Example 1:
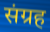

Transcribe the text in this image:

संग्रह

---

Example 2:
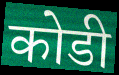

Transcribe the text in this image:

कोडी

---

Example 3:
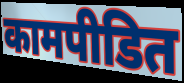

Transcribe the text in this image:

कामपीडित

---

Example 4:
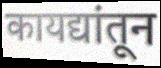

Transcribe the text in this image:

कायद्यांतून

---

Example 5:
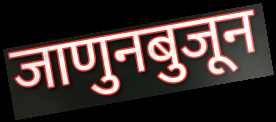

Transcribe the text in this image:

जाणुनबुजून